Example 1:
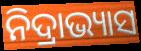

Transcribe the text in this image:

ନିଦ୍ରାଭ୍ୟାସ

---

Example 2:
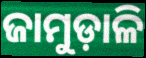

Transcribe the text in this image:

ଜାମୁଡ଼ାଳି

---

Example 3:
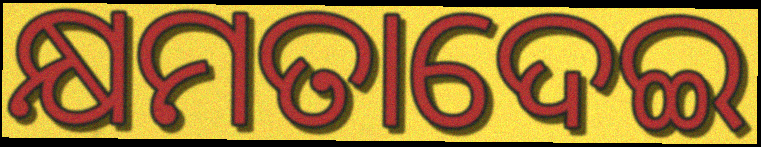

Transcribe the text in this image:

କ୍ଷମତାଦେଇ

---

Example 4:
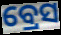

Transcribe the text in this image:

ବ୍ରେସ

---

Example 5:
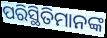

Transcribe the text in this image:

ପରିସ୍ଥିତିମାନଙ୍କ